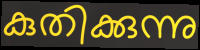
കുതിക്കുന്നു